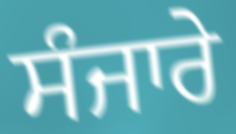
ਸੰਜਾਰੇ